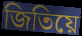
জিতিয়ে